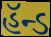
હૅન્ડ